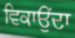
ਵਿਕਾਉੰਦਾ